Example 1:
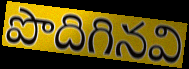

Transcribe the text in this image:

పొదిగినవి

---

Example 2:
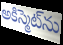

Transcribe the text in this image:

అకిస్మెట్‌ను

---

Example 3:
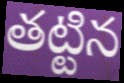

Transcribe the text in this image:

తట్టిన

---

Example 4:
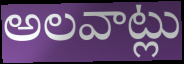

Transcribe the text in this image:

అలవాట్లు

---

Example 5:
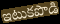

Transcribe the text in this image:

ఇటుకపొడి